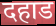
दहाड